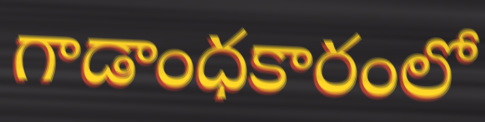
గాడాంధకారంలో